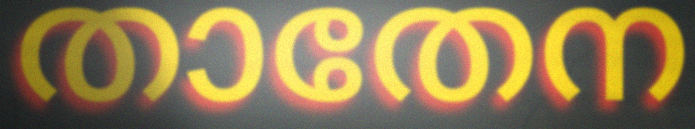
താതേന